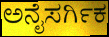
ಅನೈಸರ್ಗಿಕ